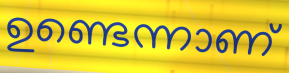
ഉണ്ടെന്നാണ്